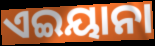
ଏଇୟାନା